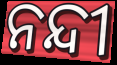
ନନ୍ଦୀ